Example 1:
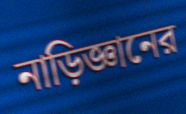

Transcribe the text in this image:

নাড়িজ্ঞানের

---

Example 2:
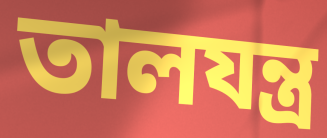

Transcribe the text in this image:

তালযন্ত্র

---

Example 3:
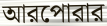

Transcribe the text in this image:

আরপোরার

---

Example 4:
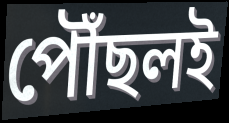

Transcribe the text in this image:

পৌঁছলই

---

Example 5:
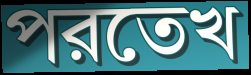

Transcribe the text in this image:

পরতেখ